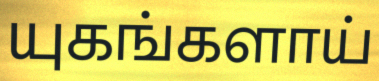
யுகங்களாய்